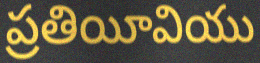
ప్రతియీవియు